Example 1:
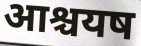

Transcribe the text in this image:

आश्चयष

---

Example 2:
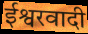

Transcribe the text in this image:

ईश्वरवादी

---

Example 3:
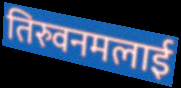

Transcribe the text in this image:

तिरुवनमलाई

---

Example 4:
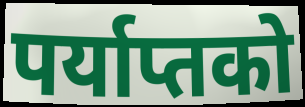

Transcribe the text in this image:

पर्याप्तको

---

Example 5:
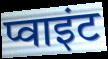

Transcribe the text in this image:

प्वाइंट